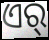
ଏର୍